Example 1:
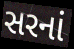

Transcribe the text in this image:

સરનાં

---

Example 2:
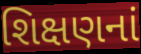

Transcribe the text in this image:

શિક્ષણનાં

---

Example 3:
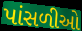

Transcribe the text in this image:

પાંસળીઓ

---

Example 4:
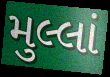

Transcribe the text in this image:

મુલ્લાં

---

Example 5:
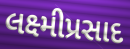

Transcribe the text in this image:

લક્ષ્મીપ્રસાદ